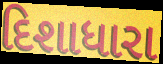
દિશાધારા